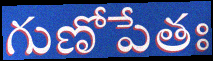
గుణోపేతః